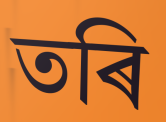
তৰি